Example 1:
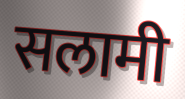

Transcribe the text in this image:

सलामी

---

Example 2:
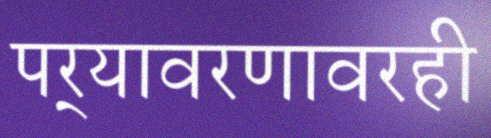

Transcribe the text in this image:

पर्यावरणावरही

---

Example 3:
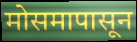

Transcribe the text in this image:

मोसमापासून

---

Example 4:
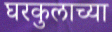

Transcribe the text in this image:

घरकुलाच्या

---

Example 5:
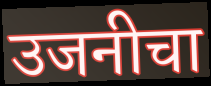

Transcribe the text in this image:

उजनीचा